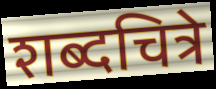
शब्दचित्रे